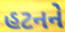
હટનને